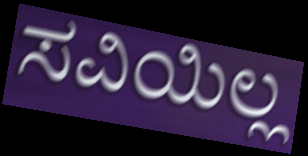
ಸವಿಯಿಲ್ಲ